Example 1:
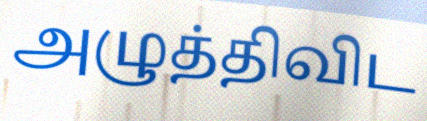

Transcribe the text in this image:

அழுத்திவிட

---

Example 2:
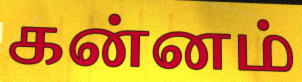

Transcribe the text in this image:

கன்னம்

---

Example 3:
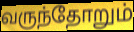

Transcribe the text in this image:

வருந்தோறும்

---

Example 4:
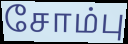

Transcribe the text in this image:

சோம்பு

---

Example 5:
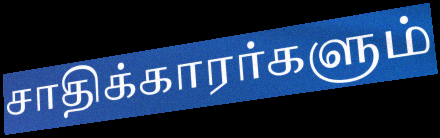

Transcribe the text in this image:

சாதிக்காரர்களும்